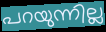
പറയുന്നില്ല